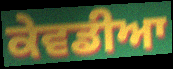
ਕੇਵਡੀਆ